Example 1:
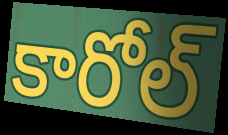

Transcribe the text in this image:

కారోల్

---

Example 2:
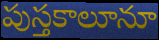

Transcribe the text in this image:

పుస్తకాలూనూ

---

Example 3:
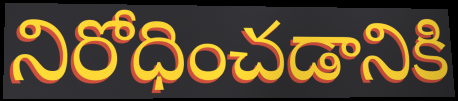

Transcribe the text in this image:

నిరోధించడానికి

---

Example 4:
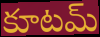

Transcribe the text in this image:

కూటమ్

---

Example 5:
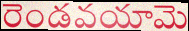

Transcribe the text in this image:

రెండవయామె